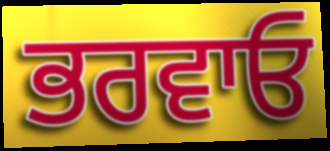
ਭਰਵਾਓ